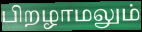
பிறழாமலும்